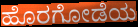
ಹೊರಗೋಡೆಯ